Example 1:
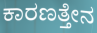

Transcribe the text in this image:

ಕಾರಣತ್ತೇನ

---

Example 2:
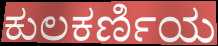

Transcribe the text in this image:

ಕುಲಕರ್ಣಿಯ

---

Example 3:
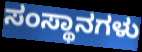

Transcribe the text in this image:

ಸಂಸ್ಥಾನಗಳು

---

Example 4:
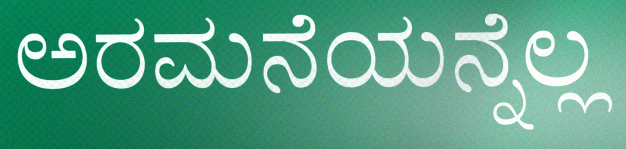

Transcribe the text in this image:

ಅರಮನೆಯನ್ನೆಲ್ಲ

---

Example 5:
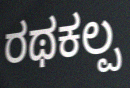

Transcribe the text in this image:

ರಥಕಲ್ಪ